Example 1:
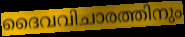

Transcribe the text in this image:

ദൈവവിചാരത്തിനും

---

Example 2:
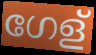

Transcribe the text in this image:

ഗേള്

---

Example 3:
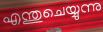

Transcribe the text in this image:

എന്തുചെയ്യുന്നു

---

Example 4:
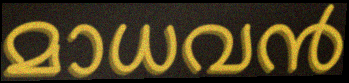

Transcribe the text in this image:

മാധവൻ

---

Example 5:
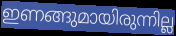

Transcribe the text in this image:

ഇണങ്ങുമായിരുന്നില്ല